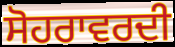
ਸੋਹਰਾਵਰਦੀ